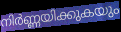
നിർണ്ണയിക്കുകയും